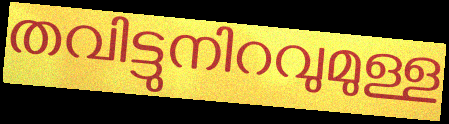
തവിട്ടുനിറവുമുള്ള